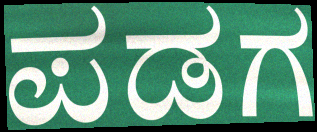
ಪಡಗ